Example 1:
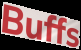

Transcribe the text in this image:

Buffs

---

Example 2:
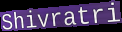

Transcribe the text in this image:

Shivratri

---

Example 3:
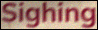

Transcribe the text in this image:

Sighing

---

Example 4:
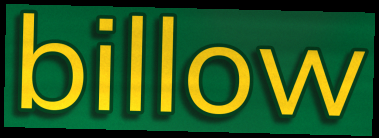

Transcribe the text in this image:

billow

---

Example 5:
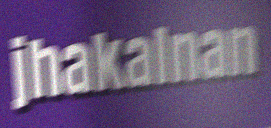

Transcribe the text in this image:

jhakalnan